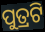
ପୁତ୍ରଟି